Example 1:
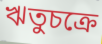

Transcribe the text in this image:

ঋতুচক্রে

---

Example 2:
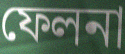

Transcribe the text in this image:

ফেলনা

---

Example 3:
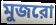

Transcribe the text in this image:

মুজরো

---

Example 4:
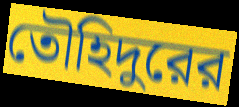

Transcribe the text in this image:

তৌহিদুরের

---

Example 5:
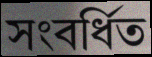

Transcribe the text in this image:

সংবর্ধিত